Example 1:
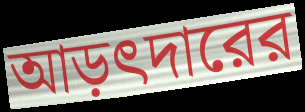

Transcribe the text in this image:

আড়ৎদারের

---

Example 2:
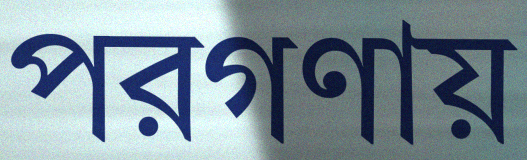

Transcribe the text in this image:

পরগণায়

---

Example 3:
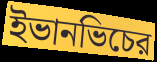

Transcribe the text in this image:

ইভানভিচের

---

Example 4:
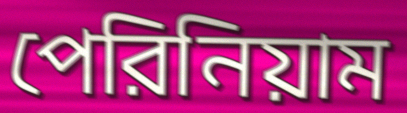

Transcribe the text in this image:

পেরিনিয়াম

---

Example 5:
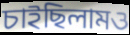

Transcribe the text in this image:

চাইছিলামও